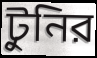
টুনির